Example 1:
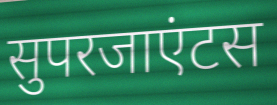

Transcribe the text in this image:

सुपरजाएंटस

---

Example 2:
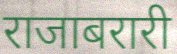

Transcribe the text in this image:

राजाबरारी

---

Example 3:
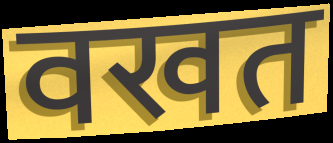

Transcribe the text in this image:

वखत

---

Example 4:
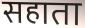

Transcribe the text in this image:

सहाता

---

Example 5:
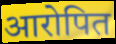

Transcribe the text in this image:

आरोपित